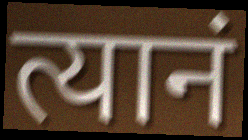
त्यानं